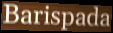
Barispada